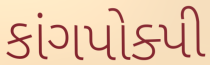
કાંગપોક્પી